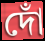
দোঁ